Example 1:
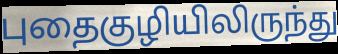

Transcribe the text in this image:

புதைகுழியிலிருந்து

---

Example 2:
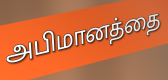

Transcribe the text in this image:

அபிமானத்தை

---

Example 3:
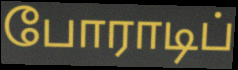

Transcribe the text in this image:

போராடிப்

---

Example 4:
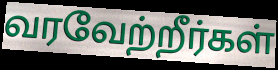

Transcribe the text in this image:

வரவேற்றீர்கள்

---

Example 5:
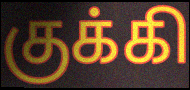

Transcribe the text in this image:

குக்கி